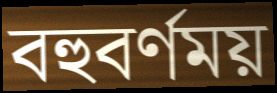
বহুবর্ণময়